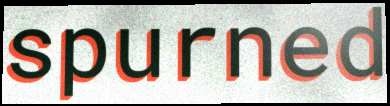
spurned